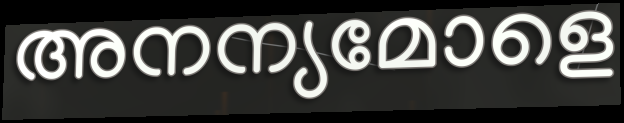
അനന്യമോളെ